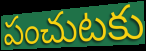
పంచుటకు